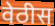
वेठीस